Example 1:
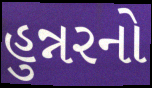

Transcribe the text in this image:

હુન્નરનો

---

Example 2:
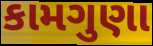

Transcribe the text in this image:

કામગુણા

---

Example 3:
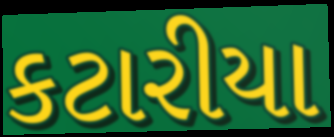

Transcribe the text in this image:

કટારીયા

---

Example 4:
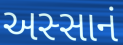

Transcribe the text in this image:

અસ્સાનં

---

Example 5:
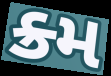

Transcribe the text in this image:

ક્ર્મ